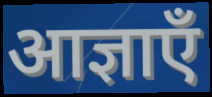
आज्ञाएँ